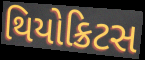
થિયોક્રિટસ